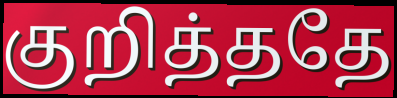
குறித்ததே